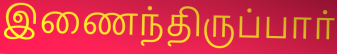
இணைந்திருப்பார்